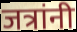
जत्रांनी